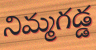
నిమ్మగడ్డ